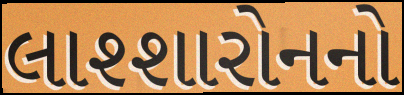
લાશ્શારોનનો